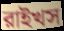
রাইখস